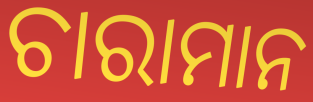
ଚାରାମାନ